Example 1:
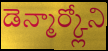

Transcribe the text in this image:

డెన్మార్క్లోని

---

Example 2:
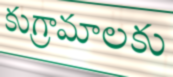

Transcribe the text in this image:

కుగ్రామాలకు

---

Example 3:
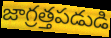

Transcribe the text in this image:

జాగ్రత్తపడుడి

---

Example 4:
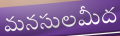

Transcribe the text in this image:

మనసులమీద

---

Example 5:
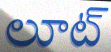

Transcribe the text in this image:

లూట్